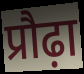
प्रौढ़ा